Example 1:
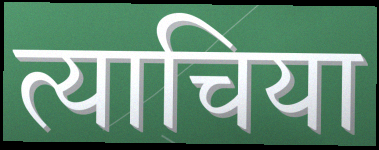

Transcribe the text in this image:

त्याचिया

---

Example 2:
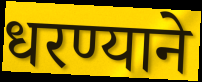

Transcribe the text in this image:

धरण्याने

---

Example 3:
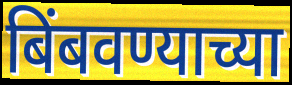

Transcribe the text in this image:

बिंबवण्याच्या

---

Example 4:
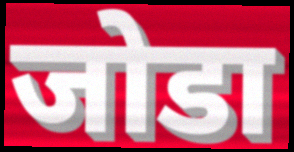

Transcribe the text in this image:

जोडा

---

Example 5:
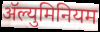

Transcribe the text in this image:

ॲल्युमिनियम